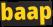
baap